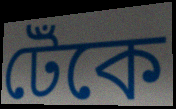
টেঁকে